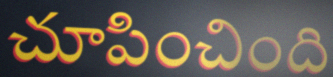
చూపించింది